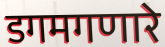
डगमगणारे